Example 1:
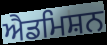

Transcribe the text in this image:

ਐਡਮਿਸ਼ਨ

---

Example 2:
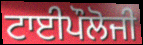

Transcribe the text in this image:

ਟਾਈਪੌਲੋਜੀ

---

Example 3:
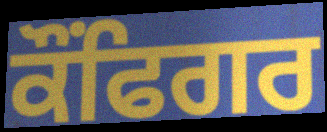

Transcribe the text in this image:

ਕੌਂਫਿਗਰ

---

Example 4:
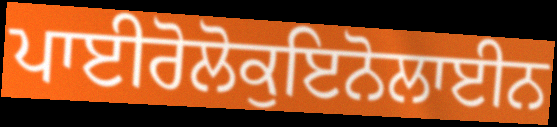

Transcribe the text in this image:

ਪਾਈਰੋਲੋਕੁਇਨੋਲਾਈਨ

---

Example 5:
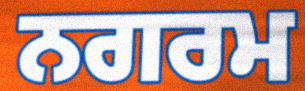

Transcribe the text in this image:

ਨਗਰਮ